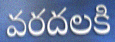
వరదలకి